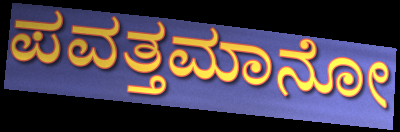
ಪವತ್ತಮಾನೋ